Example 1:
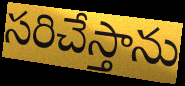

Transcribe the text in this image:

సరిచేస్తాను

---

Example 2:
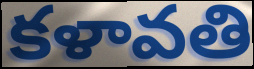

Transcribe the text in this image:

కళావతి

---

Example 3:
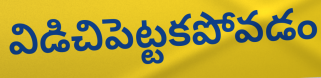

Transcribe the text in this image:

విడిచిపెట్టకపోవడం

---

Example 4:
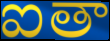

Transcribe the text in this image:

ఐతా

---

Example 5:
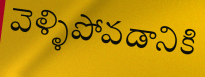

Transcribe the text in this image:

వెళ్ళిపోవడానికి